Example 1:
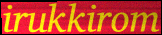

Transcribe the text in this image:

irukkirom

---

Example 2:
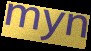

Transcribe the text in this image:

myn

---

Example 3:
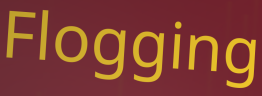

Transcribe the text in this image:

Flogging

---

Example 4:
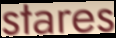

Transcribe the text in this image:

stares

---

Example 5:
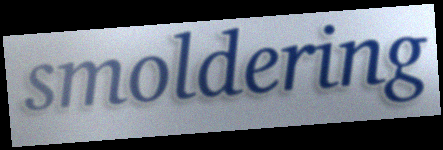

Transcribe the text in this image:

smoldering